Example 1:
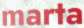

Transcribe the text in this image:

marta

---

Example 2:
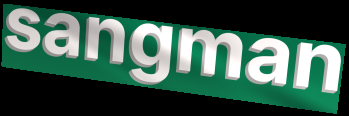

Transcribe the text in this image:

sangman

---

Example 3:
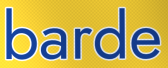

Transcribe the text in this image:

barde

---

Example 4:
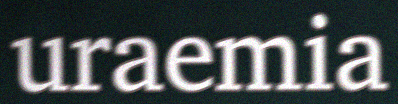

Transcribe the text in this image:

uraemia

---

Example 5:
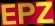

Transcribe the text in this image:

EPZ